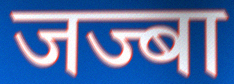
जज्बा